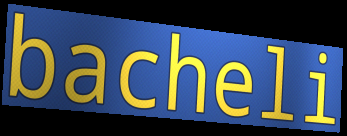
bacheli